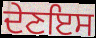
ਦੇਣਇਸ